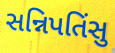
સન્નિપતિંસુ